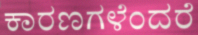
ಕಾರಣಗಳೆಂದರೆ